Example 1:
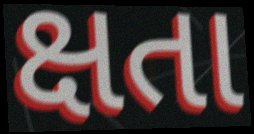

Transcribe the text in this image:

ક્ષતા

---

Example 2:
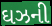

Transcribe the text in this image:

ઘઝની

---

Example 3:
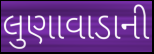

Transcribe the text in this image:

લુણાવાડાની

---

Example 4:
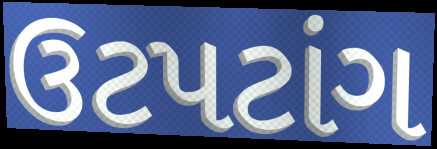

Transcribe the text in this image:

ઉટપટાંગ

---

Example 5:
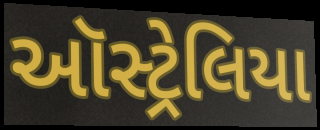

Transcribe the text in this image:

ઑસ્ટ્રેલિયા